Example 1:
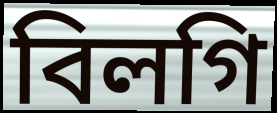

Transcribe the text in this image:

বিলগি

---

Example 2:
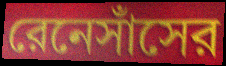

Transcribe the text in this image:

রেনেসাঁসের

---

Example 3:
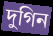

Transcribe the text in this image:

দুগিন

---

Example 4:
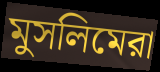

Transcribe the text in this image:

মুসলিমেরা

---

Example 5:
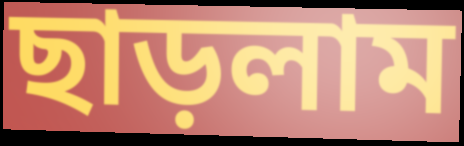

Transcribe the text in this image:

ছাড়লাম